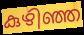
കുഴിഞ്ഞ